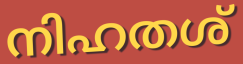
നിഹതശ്